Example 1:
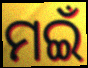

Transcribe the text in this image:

ମଇଁ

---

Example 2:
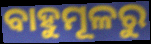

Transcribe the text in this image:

ବାହୁମୂଳରୁ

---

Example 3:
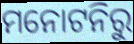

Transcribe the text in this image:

ମନୋଟନିରୁ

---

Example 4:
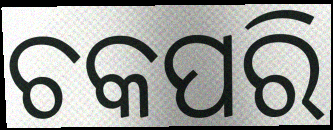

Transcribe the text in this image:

ଚକପରି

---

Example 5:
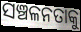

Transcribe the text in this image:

ସଞ୍ଚଳନତାକୁ